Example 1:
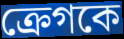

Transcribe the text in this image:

ক্রেগকে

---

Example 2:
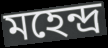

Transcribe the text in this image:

মহেন্দ্র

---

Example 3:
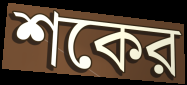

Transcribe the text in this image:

শকের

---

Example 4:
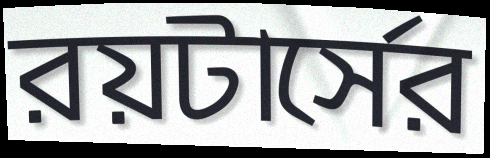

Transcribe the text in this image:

রয়টার্সের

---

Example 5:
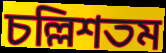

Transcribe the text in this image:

চল্লিশতম